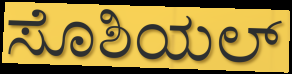
ಸೊಶಿಯಲ್